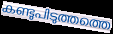
കണ്ടുപിടുത്തത്തെ